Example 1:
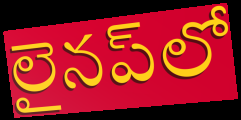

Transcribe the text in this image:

లైనప్‌లో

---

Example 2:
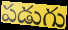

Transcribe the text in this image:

పడుగు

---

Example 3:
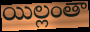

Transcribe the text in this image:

యిల్లంతా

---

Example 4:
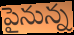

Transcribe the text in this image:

పైనున్న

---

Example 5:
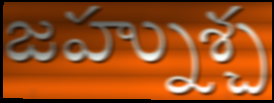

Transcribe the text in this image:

జహ్నుశ్చ